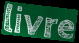
livre